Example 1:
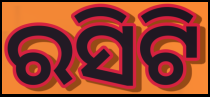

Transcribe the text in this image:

ରସିଟି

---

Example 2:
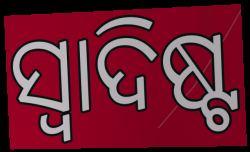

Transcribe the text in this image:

ସ୍ବାଦିଷ୍ଟ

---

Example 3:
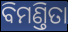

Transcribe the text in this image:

ବିମଣ୍ତିତା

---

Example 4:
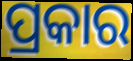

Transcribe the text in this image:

ପ୍ରକାର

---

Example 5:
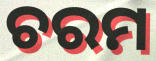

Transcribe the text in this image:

ଚରମ